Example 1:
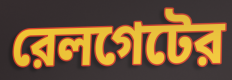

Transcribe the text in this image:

রেলগেটের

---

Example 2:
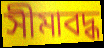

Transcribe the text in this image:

সীমাবদ্ধ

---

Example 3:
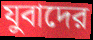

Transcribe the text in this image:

যুবাদের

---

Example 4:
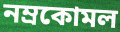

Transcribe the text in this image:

নম্রকোমল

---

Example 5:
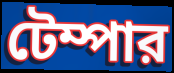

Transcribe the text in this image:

টেম্পার